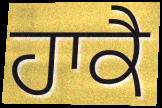
ਹਾਕੈ